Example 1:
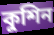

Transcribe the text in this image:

কুশিন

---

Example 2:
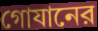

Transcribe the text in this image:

গোযানের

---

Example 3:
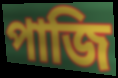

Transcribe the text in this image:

পাজি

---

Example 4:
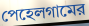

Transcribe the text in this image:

পেহেলগামের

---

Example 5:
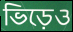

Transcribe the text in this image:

ভিড়েও